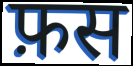
फ़स